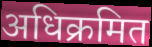
अधिक्रमित